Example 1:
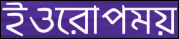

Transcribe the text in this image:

ইওরোপময়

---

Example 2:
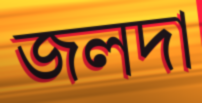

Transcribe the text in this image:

জলদা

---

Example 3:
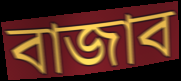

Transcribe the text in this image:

বাজাব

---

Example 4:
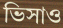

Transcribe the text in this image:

ভিসাও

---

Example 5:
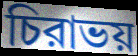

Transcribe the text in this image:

চিরাভয়